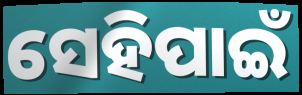
ସେହିପାଇଁ